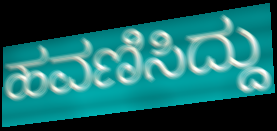
ಹವಣಿಸಿದ್ದು